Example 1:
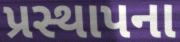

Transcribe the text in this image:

પ્રસ્થાપના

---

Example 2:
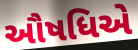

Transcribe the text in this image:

ઔષધિએ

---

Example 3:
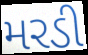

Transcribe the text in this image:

મરડી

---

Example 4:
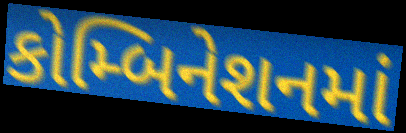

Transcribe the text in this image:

કોમ્બિનેશનમાં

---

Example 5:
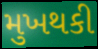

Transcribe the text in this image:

મુખથકી